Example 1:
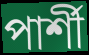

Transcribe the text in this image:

পার্শী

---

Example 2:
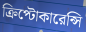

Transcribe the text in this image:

ক্রিপ্টোকারেন্সি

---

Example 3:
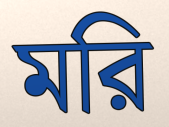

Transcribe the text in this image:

মরি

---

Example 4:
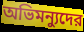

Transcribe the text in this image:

অভিমন্যুদের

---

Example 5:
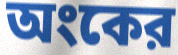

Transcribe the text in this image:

অংকের